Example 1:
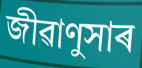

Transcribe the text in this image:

জীৱাণুসাৰ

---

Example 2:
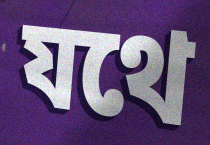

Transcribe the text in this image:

যথে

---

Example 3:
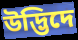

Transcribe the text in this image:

উদ্ভিদে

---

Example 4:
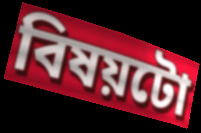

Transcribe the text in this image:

বিষয়টো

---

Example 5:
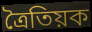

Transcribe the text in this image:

ত্ৰৈতিয়ক